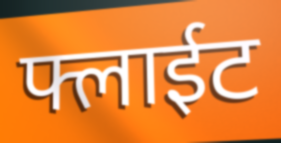
फ्लाईट